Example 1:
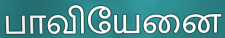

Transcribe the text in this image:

பாவியேனை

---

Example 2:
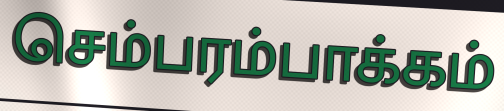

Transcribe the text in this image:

செம்பரம்பாக்கம்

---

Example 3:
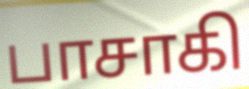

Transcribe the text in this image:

பாசாகி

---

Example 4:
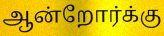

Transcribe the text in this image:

ஆன்றோர்க்கு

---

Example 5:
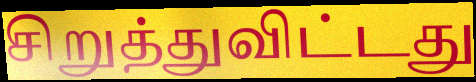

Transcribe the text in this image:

சிறுத்துவிட்டது